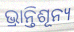
ଭ୍ରାନ୍ତିଶୂନ୍ୟ